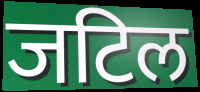
जटिल